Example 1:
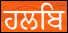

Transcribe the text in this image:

ਹਲਬਿ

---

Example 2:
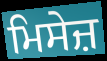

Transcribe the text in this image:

ਮਿਸੇਜ਼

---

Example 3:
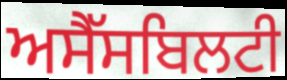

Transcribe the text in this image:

ਅਸੈੱਸਬਿਲਟੀ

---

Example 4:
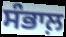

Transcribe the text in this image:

ਸੰਭਾਲ਼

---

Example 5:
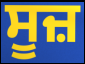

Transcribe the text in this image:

ਸੂਜ਼